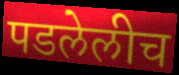
पडलेलीच